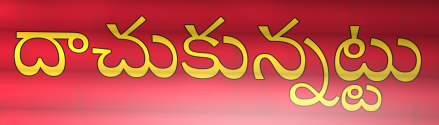
దాచుకున్నట్టు